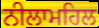
ਨੀਲਾਮਹਿਲ